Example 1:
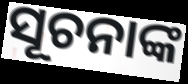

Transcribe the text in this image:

ସୂଚନାଙ୍କ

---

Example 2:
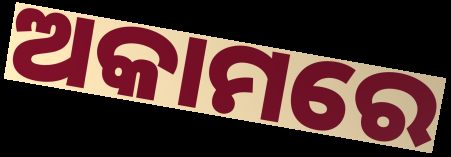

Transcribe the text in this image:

ଅକାମରେ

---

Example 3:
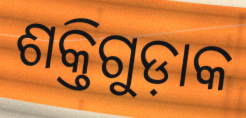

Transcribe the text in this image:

ଶକ୍ତିଗୁଡ଼ାକ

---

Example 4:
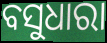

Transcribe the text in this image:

ବସୁଧାରା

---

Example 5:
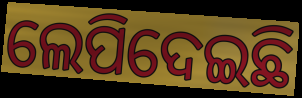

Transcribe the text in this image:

ଲେପିଦେଇଛି